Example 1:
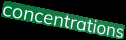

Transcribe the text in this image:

concentrations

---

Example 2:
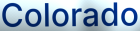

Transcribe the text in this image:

Colorado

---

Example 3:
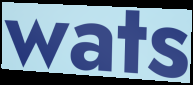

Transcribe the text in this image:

wats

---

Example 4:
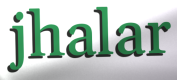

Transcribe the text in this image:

jhalar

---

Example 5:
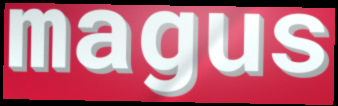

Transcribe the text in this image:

magus